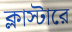
ক্লাস্টারে